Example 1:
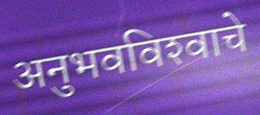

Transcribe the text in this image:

अनुभवविश्वाचे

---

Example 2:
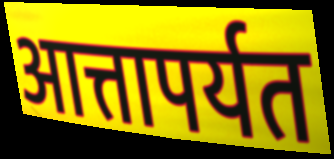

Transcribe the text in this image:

आत्तापर्यत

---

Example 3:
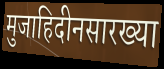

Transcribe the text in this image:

मुजाहिदीनसारख्या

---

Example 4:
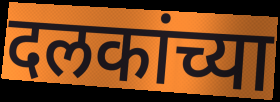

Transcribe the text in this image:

दलकांच्या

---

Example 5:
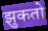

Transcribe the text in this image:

झुकतो